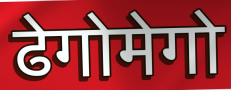
ढेगोमेगो